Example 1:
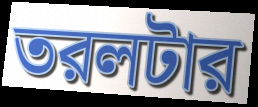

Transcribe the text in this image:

তরলটার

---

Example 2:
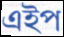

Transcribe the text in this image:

এইপ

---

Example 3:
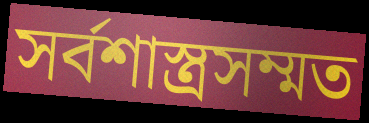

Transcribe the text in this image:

সর্বশাস্ত্রসম্মত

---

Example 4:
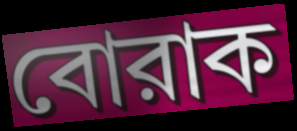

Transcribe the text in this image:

বোরাক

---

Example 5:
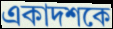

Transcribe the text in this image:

একাদশকে